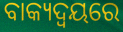
ବାକ୍ୟଦ୍ଵୟରେ